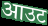
आउट